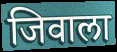
जिवाला